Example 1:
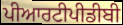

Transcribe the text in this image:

ਪੀਆਰਟੀਪੀਡੀਬੀ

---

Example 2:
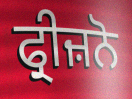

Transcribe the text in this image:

ਫ੍ਰੀਜ਼ਨੋ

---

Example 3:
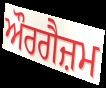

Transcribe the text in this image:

ਔਰਗੈਜ਼ਮ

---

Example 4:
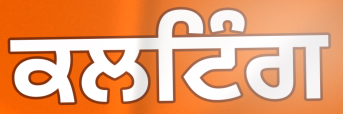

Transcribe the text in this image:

ਕਲਟਿੰਗ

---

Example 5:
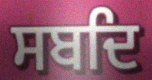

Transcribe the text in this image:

ਸਬਦਿ